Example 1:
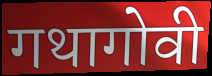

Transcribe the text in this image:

गथागोवी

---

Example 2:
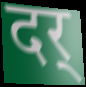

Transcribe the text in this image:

दर्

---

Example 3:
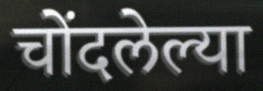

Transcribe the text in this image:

चोंदलेल्या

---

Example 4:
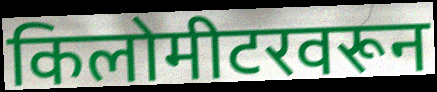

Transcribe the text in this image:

किलोमीटरवरून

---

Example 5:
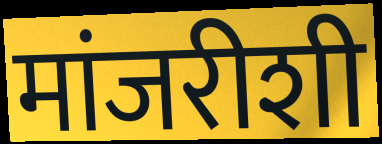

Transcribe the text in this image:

मांजरीशी